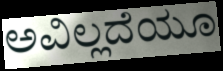
ಅವಿಲ್ಲದೆಯೂ